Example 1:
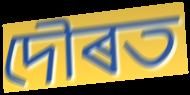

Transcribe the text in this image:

দৌৰত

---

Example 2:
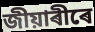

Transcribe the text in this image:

জীয়াৰীৰে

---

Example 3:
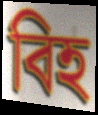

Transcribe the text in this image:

বিহ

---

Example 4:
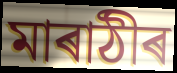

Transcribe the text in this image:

মাৰাঠীৰ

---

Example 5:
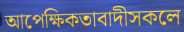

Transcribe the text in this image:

আপেক্ষিকতাবাদীসকলে